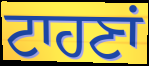
ਟਾਹਣਾਂ